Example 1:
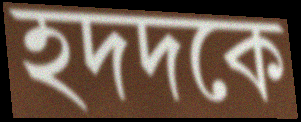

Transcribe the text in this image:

হদদকে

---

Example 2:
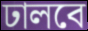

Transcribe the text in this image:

ঢালবে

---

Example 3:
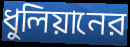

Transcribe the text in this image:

ধুলিয়ানের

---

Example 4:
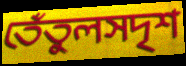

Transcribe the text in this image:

তেঁতুলসদৃশ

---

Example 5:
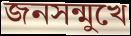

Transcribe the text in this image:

জনসন্মুখে